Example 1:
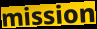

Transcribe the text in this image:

mission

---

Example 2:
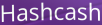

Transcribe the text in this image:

Hashcash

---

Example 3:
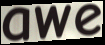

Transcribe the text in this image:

awe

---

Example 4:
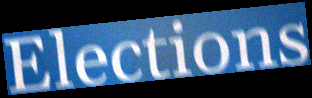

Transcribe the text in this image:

Elections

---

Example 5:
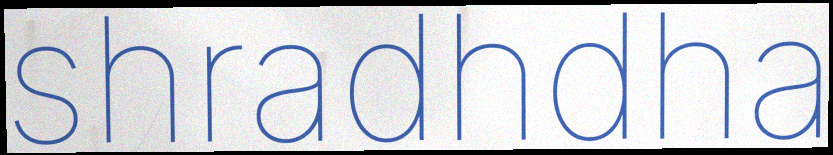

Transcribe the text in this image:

shradhdha